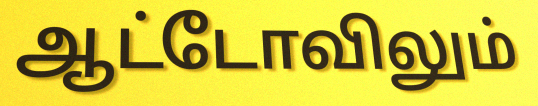
ஆட்டோவிலும்